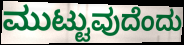
ಮುಟ್ಟುವುದೆಂದು